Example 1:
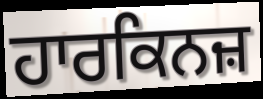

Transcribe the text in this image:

ਹਾਰਕਿਨਜ਼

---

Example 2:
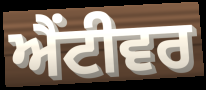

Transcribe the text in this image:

ਐਂਟੀਵਰ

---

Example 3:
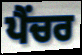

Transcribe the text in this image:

ਪੈਂਚਰ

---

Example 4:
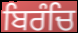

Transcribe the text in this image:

ਬਿਰੰਚਿ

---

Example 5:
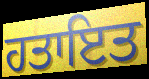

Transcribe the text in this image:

ਹਤਾਇਤ